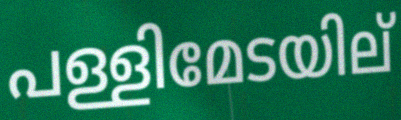
പള്ളിമേടയില്